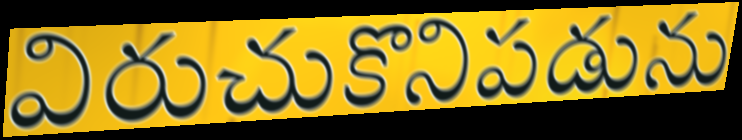
విరుచుకొనిపడును